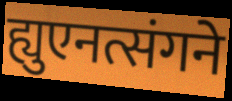
ह्युएनत्संगने